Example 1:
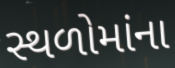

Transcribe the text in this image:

સ્થળોમાંના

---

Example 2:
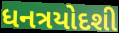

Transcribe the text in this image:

ધનત્રયોદશી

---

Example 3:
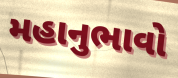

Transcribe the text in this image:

મહાનુભાવો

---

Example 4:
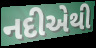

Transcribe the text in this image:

નદીએથી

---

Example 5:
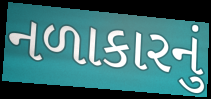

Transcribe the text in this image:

નળાકારનું